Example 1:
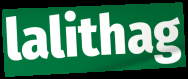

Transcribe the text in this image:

lalithag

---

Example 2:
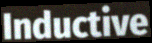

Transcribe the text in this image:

Inductive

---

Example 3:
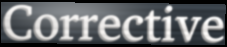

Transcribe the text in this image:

Corrective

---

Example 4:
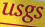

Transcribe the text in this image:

usgs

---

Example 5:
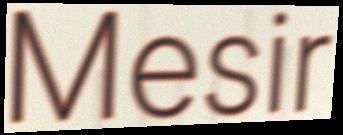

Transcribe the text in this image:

Mesir